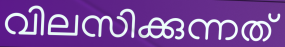
വിലസിക്കുന്നത്